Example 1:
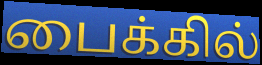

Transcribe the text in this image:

பைக்கில்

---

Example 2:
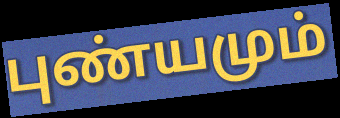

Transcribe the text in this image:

புண்யமும்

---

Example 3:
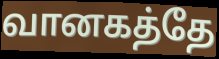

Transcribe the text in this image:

வானகத்தே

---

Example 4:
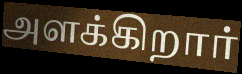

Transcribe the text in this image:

அளக்கிறார்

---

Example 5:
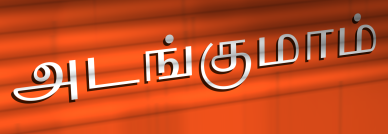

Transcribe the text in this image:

அடங்குமாம்